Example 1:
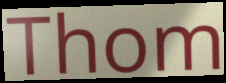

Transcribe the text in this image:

Thom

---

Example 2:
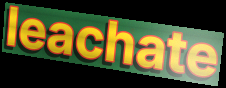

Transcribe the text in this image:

leachate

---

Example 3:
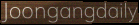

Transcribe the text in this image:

Joongangdaily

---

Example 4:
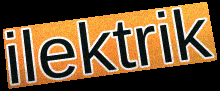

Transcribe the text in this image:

ilektrik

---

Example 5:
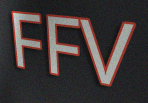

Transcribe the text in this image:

FFV